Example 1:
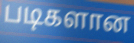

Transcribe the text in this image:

படிகளான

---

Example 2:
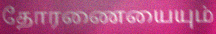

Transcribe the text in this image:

தோரணையையும்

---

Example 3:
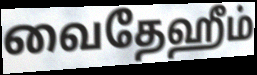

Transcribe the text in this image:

வைதேஹீம்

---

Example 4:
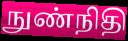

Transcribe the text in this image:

நுண்நிதி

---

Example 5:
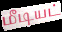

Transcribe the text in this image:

மீடியட்